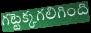
గట్టెక్కగలిగింది